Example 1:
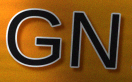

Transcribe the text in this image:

GN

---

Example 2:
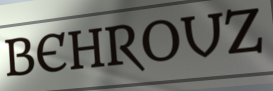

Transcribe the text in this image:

BEHROUZ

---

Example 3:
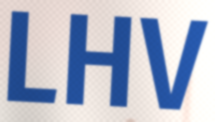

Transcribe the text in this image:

LHV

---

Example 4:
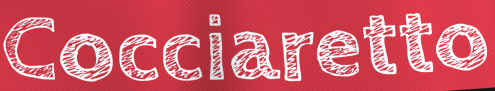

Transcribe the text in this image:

Cocciaretto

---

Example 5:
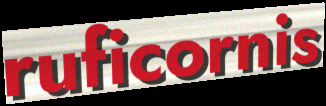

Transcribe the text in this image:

ruficornis